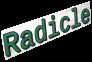
Radicle